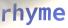
rhyme